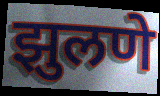
झुलणे